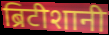
ब्रिटीशानी